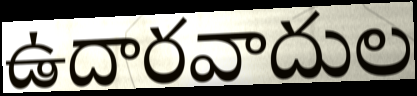
ఉదారవాదుల